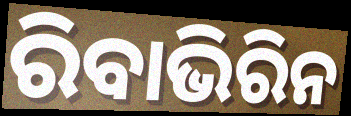
ରିବାଭିରିନ